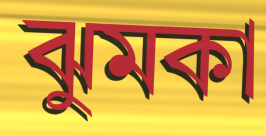
ঝুমকা